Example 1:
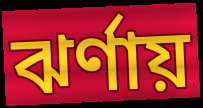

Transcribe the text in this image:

ঝর্ণায়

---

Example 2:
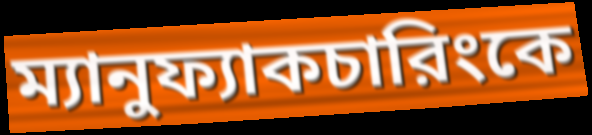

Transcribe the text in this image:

ম্যানুফ্যাকচারিংকে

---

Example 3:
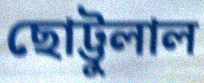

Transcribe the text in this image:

ছোট্টুলাল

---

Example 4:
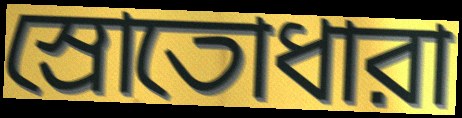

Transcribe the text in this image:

স্রোতোধারা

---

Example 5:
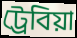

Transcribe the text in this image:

ট্রেবিয়া